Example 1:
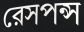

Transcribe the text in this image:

রেসপন্স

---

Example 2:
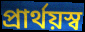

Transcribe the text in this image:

প্রার্থয়স্ব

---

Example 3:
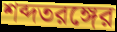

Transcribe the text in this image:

শব্দতরঙ্গের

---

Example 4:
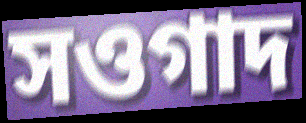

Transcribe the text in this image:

সওগাদ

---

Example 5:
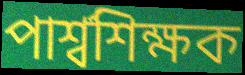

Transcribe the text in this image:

পার্শ্বশিক্ষক